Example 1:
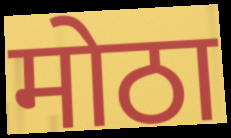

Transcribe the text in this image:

मोठा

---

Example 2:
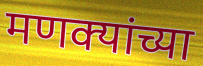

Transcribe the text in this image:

मणक्यांच्या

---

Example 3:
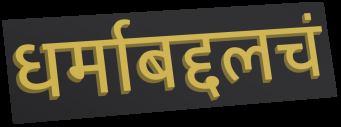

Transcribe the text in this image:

धर्माबद्दलचं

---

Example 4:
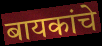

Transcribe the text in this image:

बायकांचे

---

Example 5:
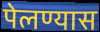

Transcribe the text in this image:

पेलण्यास